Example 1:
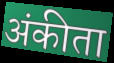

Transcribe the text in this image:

अंकीता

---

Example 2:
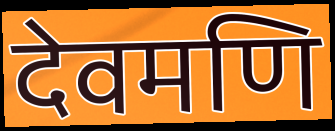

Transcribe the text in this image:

देवमणि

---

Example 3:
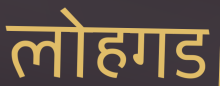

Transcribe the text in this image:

लोहगड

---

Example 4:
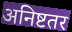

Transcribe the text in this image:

अनिष्टतर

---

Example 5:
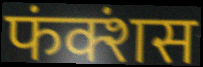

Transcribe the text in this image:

फंक्शंस